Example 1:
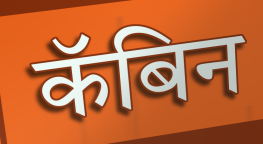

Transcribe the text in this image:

कॅबिन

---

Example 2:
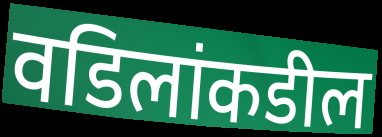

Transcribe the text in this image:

वडिलांकडील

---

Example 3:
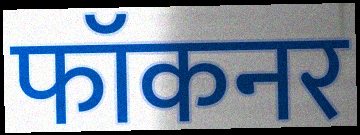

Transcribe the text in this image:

फॉकनर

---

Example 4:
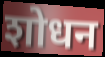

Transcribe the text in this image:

शोधन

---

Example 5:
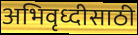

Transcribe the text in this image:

अभिवृध्दीसाठी